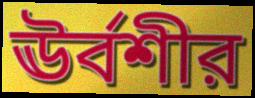
ঊর্বশীর